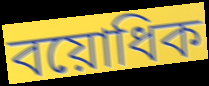
বয়োধিক